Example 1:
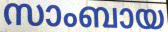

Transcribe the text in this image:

സാംബായ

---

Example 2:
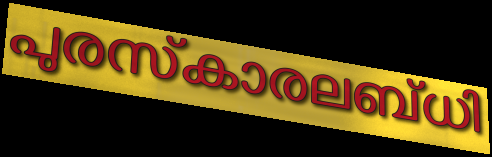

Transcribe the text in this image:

പുരസ്‌കാരലബ്ധി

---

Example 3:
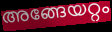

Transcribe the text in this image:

അങ്ങേയറ്റം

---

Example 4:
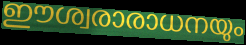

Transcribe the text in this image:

ഈശ്വരാരാധനയും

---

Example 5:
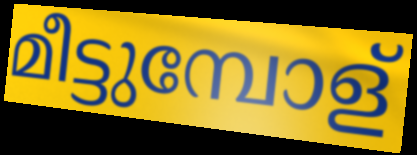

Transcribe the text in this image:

മീട്ടുമ്പോള്